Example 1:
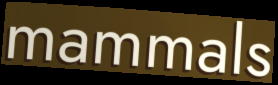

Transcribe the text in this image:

mammals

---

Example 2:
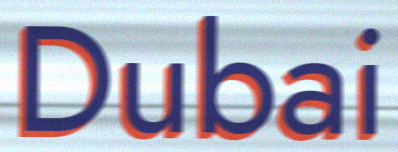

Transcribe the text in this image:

Dubai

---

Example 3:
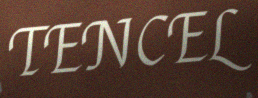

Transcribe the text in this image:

TENCEL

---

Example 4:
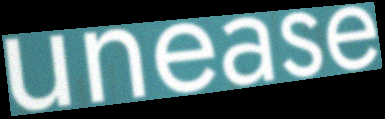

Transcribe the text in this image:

unease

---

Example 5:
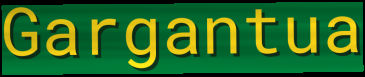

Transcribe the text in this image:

Gargantua